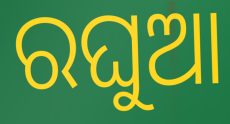
ରଘୁଆ